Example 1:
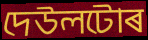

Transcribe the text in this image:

দেউলটোৰ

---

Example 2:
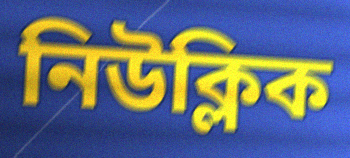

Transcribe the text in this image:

নিউক্লিক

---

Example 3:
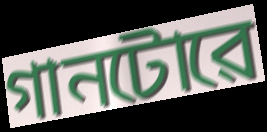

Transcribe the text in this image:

গানটোৱে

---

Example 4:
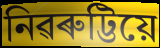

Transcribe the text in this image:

নিৱৰুট্টিয়ে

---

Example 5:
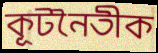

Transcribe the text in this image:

কূটনৈতীক